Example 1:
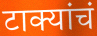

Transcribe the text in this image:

टाक्यांचं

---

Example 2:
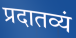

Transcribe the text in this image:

प्रदातव्यं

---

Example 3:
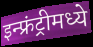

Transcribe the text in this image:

इन्फ्रंट्रीमध्ये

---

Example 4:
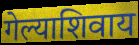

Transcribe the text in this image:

गेल्याशिवाय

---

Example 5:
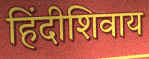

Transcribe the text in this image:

हिंदीशिवाय